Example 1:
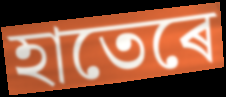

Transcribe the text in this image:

হাতেৰে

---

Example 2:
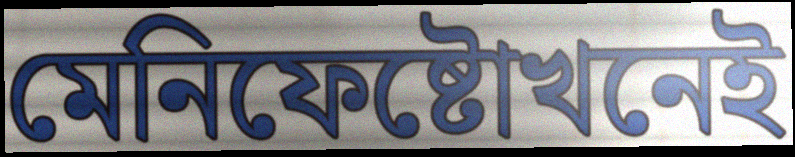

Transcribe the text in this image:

মেনিফেষ্টোখনেই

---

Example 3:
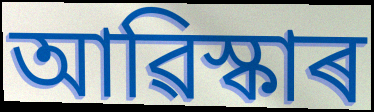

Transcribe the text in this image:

আৱিস্কাৰ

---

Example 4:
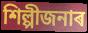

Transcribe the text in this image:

শিল্পীজনাৰ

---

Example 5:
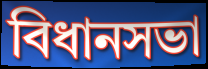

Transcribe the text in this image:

বিধানসভা